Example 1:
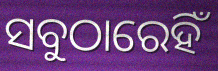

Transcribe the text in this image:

ସବୁଠାରେହିଁ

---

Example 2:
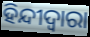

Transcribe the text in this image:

ହିନ୍ଦୀଦ୍ଵାରା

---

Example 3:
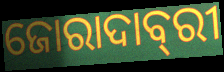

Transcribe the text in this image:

ଜୋରାଦାବ୍‌ରୀ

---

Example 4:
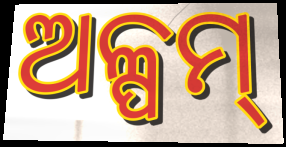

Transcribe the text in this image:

ଅଳ୍ପମ୍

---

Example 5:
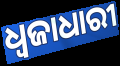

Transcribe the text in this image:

ଧ୍ଵଜାଧାରୀ